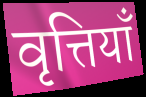
वृत्तियाँ